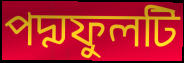
পদ্মফুলটি